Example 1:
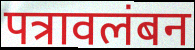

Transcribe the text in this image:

पत्रावलंबन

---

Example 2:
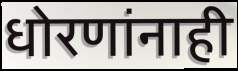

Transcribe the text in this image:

धोरणांनाही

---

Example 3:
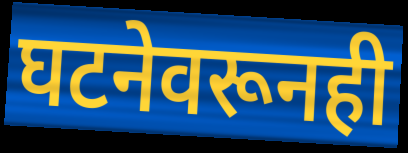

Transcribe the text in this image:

घटनेवरूनही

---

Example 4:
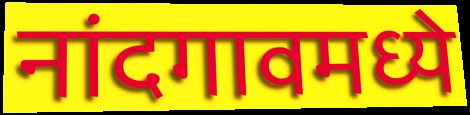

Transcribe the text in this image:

नांदगावमध्ये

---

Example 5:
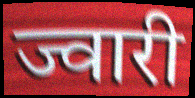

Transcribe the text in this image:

ज्वारी